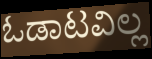
ಓಡಾಟವಿಲ್ಲ